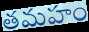
తమహం